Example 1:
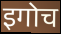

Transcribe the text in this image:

इगोच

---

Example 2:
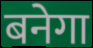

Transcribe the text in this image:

बनेगा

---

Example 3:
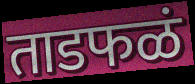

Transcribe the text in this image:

ताडफळं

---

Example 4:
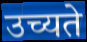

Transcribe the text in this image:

उच्यते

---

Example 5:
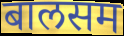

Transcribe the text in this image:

बालसम